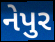
નેપુર